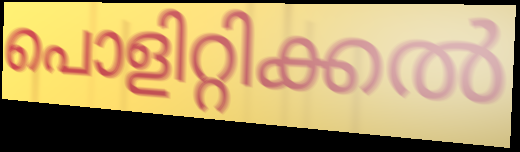
പൊളിറ്റിക്കൽ